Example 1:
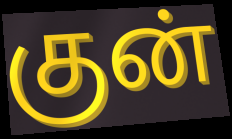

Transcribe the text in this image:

குன்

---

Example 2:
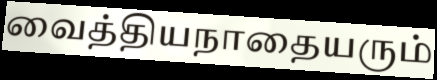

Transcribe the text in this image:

வைத்தியநாதையரும்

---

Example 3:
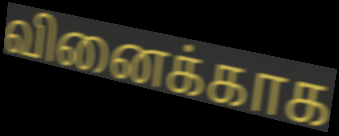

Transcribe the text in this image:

வினைக்காக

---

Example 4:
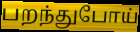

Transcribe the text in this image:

பறந்துபோய்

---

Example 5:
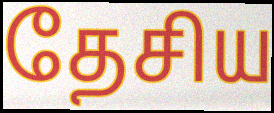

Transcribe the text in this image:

தேசிய